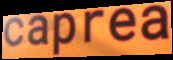
caprea